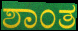
ಶಾಂತ